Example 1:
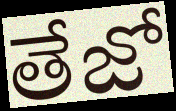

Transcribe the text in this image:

తేజో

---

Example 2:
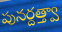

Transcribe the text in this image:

పునర్దత్త్వా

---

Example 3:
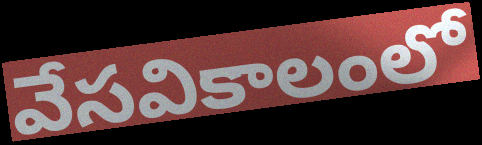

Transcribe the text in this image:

వేసవికాలంలో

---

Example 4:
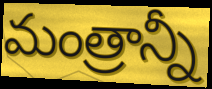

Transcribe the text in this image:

మంత్రాన్నీ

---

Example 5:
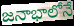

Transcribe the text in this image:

జనాభాలోనే